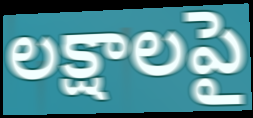
లక్షాలపై